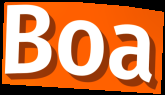
Boa